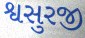
શ્વસુરજી